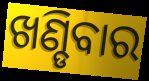
ଖଣ୍ଡିବାର